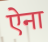
ऐना